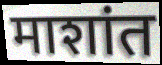
माशांत